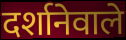
दर्शानेवाले